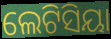
ଲେଟିସିୟା